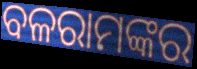
ବଳରାମଙ୍କର